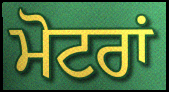
ਮੋਟਰਾਂ